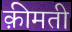
क़ीमती